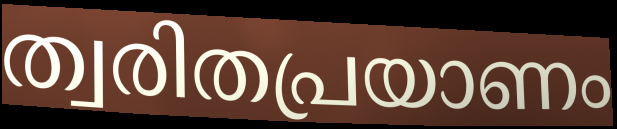
ത്വരിതപ്രയാണം